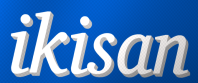
ikisan